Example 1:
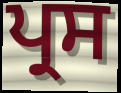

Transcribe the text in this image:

ਪ੍ਰਸ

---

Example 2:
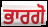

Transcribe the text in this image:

ਭਾਰਗੋ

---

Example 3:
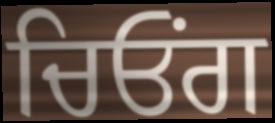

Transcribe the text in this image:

ਚਿਓਂਗ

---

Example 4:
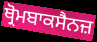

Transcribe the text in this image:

ਥ੍ਰੋਮਬਾਕਸੈਨਜ਼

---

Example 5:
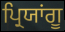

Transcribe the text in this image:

ਪ੍ਰਿਯਾਂਗੂ